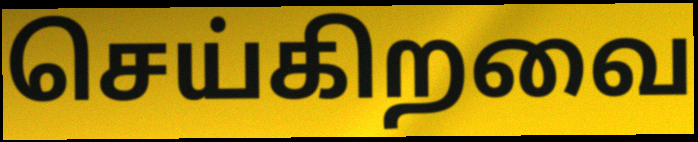
செய்கிறவை